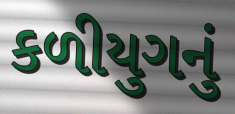
કળીયુગનું